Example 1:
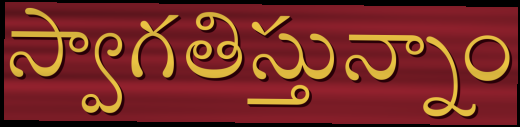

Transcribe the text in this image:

స్వాగతిస్తున్నాం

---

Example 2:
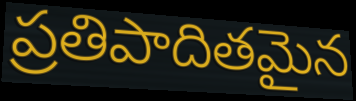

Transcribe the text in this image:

ప్రతిపాదితమైన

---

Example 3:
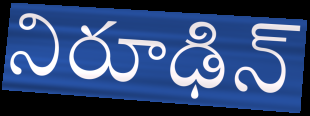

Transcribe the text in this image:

నిరూఢిన్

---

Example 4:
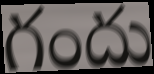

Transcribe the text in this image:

గందు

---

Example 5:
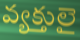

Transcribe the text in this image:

వ్యక్తులై